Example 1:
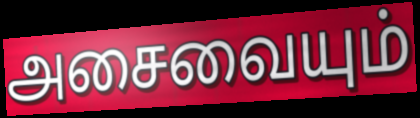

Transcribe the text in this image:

அசைவையும்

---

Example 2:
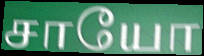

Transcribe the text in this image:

சாயோ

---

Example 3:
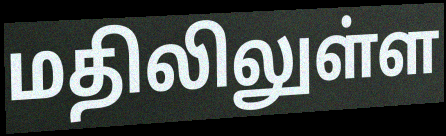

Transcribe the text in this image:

மதிலிலுள்ள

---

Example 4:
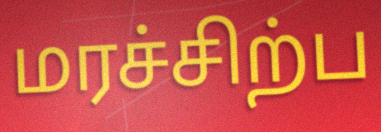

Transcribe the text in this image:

மரச்சிற்ப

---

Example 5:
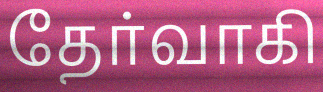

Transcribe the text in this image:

தேர்வாகி